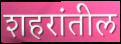
शहरांतील